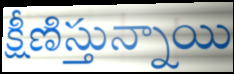
క్షీణిస్తున్నాయి